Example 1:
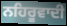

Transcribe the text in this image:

ਨਹਿਰੂਵਾਦੀ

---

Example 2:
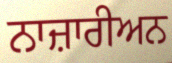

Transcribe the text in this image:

ਨਾਜ਼ਾਰੀਅਨ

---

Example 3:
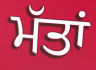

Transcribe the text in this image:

ਮੱਤਾਂ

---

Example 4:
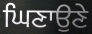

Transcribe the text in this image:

ਘਿਣਾਉਣੇ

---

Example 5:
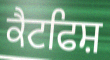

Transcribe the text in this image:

ਕੈਟਫਿਸ਼